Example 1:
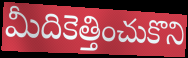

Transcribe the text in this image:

మీదికెత్తించుకొని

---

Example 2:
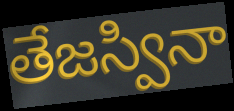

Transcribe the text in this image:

తేజస్వినా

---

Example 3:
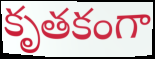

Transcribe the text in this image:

కృతకంగా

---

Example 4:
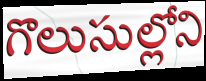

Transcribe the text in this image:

గొలుసుల్లోని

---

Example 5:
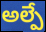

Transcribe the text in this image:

అల్పే